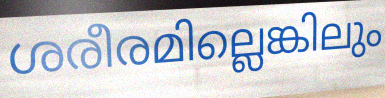
ശരീരമില്ലെങ്കിലും